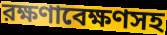
রক্ষণাবেক্ষণসহ